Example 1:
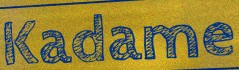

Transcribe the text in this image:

Kadame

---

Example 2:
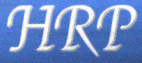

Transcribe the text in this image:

HRP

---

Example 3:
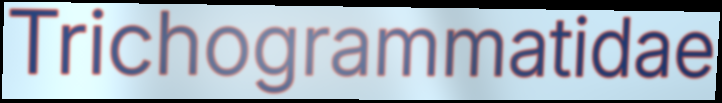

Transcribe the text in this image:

Trichogrammatidae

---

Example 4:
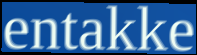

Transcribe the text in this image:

entakke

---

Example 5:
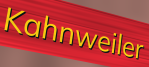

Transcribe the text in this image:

Kahnweiler